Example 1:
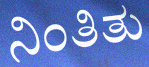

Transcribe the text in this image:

ನಿಂತಿತು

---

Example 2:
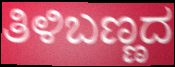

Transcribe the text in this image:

ತಿಳಿಬಣ್ಣದ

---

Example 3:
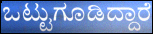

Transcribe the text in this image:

ಒಟ್ಟುಗೂಡಿದ್ದಾರೆ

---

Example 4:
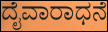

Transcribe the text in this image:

ದೈವಾರಾಧನೆ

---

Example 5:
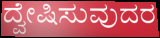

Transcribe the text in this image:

ದ್ವೇಷಿಸುವುದರ